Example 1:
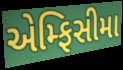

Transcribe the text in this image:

એમ્ફિસીમા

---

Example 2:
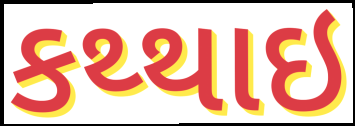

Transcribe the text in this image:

કથ્થાઇ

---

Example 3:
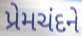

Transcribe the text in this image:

પ્રેમચંદને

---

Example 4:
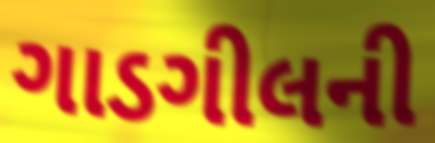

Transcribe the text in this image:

ગાડગીલની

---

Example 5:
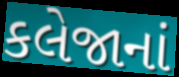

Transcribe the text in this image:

કલેજાનાં